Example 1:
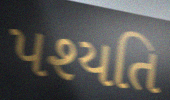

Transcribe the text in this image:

પશ્યતિ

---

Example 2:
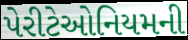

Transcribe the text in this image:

પેરીટેઓનિયમની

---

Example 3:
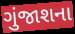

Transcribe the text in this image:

ગુંજાશના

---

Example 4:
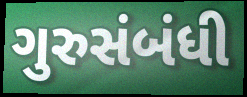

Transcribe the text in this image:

ગુરુસંબંધી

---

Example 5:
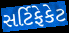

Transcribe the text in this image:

સર્ટિફેકેટ